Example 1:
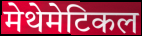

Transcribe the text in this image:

मेथेमेटिकल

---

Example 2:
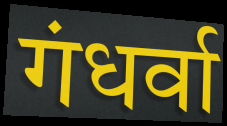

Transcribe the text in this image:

गंधर्वा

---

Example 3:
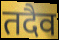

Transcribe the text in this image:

तदैव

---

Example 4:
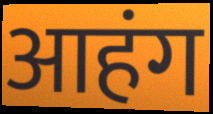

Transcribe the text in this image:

आहंग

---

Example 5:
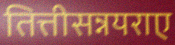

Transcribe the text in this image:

तित्तीसन्नयराए